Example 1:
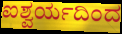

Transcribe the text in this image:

ಐಶ್ವರ್ಯದಿಂದ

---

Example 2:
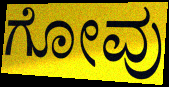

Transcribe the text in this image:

ಗೋವು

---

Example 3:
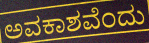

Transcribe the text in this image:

ಅವಕಾಶವೆಂದು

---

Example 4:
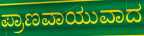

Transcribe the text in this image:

ಪ್ರಾಣವಾಯುವಾದ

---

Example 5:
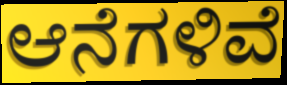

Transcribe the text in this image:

ಆನೆಗಳಿವೆ